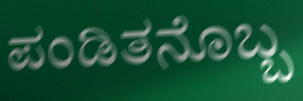
ಪಂಡಿತನೊಬ್ಬ